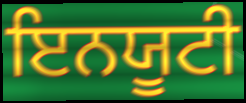
ਇਨਯੂਟੀ